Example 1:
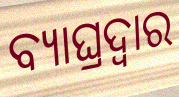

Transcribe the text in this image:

ବ୍ୟାଘ୍ରଦ୍ଵାର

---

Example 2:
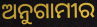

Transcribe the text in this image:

ଅନୁଗାମୀର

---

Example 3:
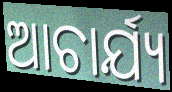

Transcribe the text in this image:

ଆଚାର୍ଯ୍ୟ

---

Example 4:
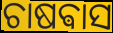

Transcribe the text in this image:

ଚାଷଵାସ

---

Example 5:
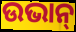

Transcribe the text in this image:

ଉଭାନ୍